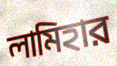
লামিহার